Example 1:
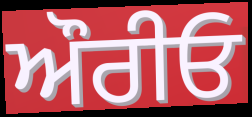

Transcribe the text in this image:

ਔਰੀਓ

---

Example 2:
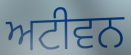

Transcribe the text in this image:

ਅਟੀਵਨ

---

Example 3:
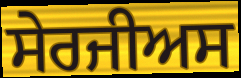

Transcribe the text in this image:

ਸੇਰਜੀਅਸ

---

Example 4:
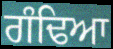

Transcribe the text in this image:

ਗੰਢਿਆ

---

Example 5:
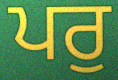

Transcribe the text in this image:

ਪਰੁ